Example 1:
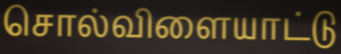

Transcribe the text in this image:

சொல்விளையாட்டு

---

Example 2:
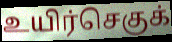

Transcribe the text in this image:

உயிர்செகுக்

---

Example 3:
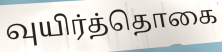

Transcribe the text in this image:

வுயிர்த்தொகை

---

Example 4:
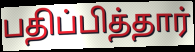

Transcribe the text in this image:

பதிப்பித்தார்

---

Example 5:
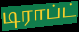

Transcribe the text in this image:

டிராப்ட்